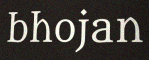
bhojan